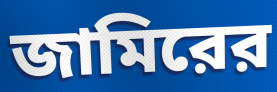
জামিরের